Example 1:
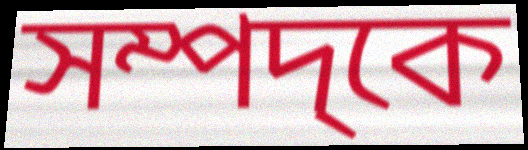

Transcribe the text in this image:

সম্পদ্‌কে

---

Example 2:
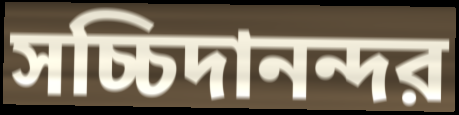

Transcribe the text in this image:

সচ্চিদানন্দর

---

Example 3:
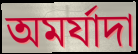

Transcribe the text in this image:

অমর্যাদা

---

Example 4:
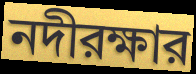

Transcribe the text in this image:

নদীরক্ষার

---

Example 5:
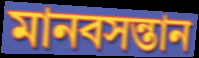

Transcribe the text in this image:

মানবসন্তান